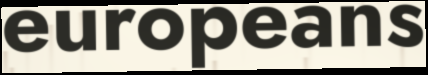
europeans